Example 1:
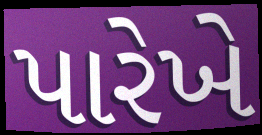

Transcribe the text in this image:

પારેખે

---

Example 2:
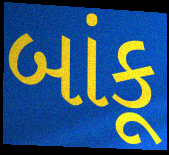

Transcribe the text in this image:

બાંકૂ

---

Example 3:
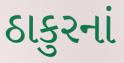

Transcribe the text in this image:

ઠાકુરનાં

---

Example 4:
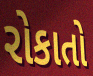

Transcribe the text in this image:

રોકાતો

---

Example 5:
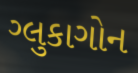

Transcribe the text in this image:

ગ્લુકાગોન